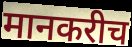
मानकरीच